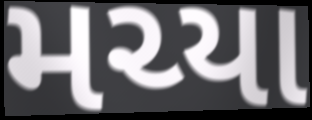
મચ્યા